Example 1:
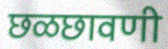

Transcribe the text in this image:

छळछावणी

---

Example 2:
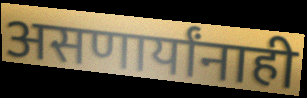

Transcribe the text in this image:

असणार्यांनाही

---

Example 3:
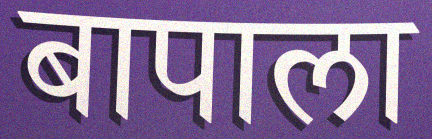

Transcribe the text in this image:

बापाला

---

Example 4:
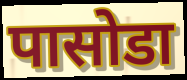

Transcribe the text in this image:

पासोडा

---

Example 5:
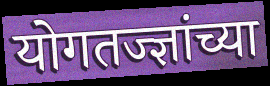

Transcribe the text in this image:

योगतज्ज्ञांच्या